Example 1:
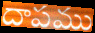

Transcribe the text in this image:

దాపము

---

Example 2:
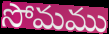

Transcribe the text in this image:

సోమము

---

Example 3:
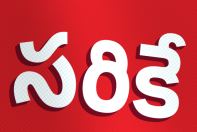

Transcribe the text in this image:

సరికే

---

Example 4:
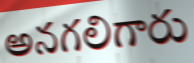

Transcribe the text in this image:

అనగలిగారు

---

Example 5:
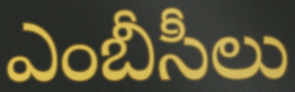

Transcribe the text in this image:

ఎంబీసీలు